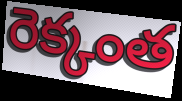
రెక్కంత